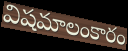
విషమాలంకారం